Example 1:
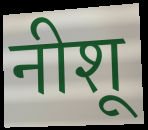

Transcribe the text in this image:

नीशू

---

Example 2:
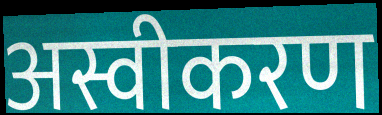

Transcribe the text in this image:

अस्वीकरण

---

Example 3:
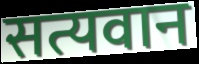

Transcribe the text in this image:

सत्यवान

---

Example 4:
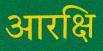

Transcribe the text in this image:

आरक्षि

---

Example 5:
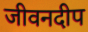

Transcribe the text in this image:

जीवनदीप